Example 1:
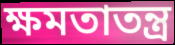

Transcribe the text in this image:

ক্ষমতাতন্ত্র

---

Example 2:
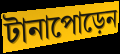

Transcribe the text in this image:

টানাপোড়েন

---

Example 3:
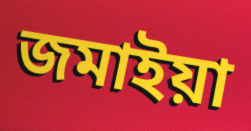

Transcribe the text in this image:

জমাইয়া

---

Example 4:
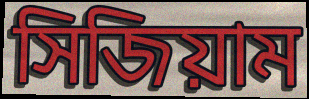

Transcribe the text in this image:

সিজিয়াম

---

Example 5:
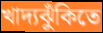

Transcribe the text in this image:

খাদ্যঝুঁকিতে